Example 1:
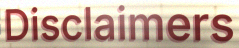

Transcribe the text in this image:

Disclaimers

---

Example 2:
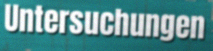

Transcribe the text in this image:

Untersuchungen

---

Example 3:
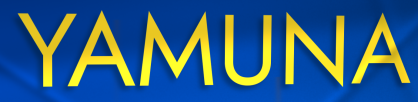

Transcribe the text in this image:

YAMUNA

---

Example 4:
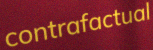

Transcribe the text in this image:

contrafactual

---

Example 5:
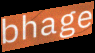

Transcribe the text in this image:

bhage